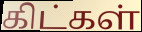
கிட்கள்